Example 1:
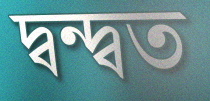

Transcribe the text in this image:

দ্বন্দ্বত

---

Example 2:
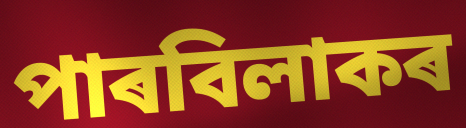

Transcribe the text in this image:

পাৰবিলাকৰ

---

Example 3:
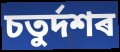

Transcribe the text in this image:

চতুৰ্দশৰ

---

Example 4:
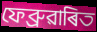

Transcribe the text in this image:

ফেব্ৰুৱাৰিত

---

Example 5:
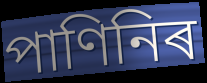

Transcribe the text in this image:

পাণিনিৰ